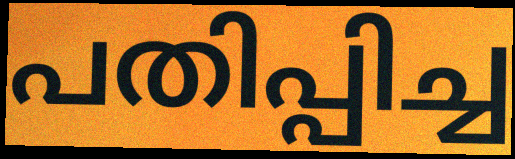
പതിപ്പിച്ച